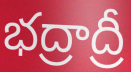
భద్రాద్రీ